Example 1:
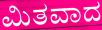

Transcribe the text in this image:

ಮಿತವಾದ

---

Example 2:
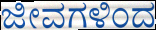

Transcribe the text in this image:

ಜೀವಗಳಿಂದ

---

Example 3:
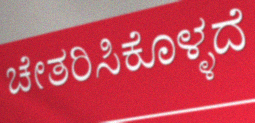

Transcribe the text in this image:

ಚೇತರಿಸಿಕೊಳ್ಳದೆ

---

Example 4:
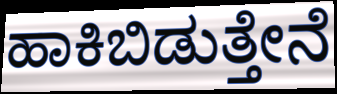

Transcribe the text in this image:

ಹಾಕಿಬಿಡುತ್ತೇನೆ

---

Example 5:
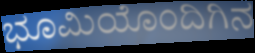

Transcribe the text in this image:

ಭೂಮಿಯೊಂದಿಗಿನ